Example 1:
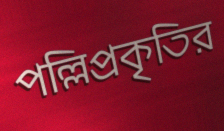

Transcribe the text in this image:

পল্লিপ্রকৃতির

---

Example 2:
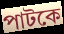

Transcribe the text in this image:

পাটকে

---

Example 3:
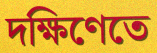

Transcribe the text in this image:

দক্ষিণেতে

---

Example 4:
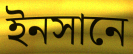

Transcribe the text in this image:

ইনসানে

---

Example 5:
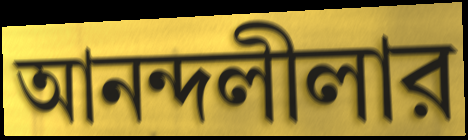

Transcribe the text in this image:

আনন্দলীলার